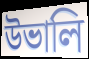
উভালি